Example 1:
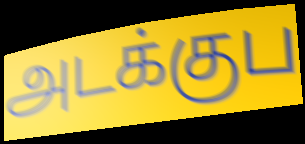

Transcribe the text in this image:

அடக்குப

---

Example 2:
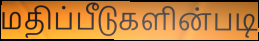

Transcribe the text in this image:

மதிப்பீடுகளின்படி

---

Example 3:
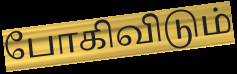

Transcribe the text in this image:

போகிவிடும்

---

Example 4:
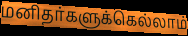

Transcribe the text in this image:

மனிதர்களுக்கெல்லாம்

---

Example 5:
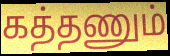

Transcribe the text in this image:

கத்தணும்